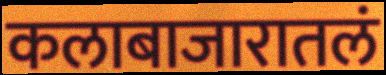
कलाबाजारातलं